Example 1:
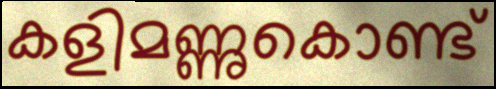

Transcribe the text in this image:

കളിമണ്ണുകൊണ്ട്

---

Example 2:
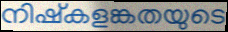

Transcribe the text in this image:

നിഷ്കളങ്കതയുടെ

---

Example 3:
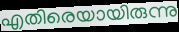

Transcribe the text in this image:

എതിരെയായിരുന്നു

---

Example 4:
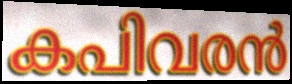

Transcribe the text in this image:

കപിവരൻ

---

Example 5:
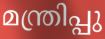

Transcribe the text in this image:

മന്ത്രിപ്പു